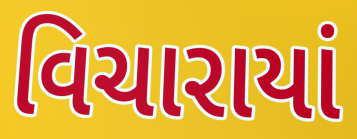
વિચારાયાં